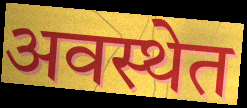
अवस्थेत